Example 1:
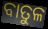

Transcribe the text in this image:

ବାତୁଳ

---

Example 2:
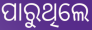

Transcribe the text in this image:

ପାରୁଥିଲେ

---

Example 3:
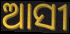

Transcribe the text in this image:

ଆସୀ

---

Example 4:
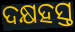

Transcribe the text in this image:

ଦକ୍ଷହସ୍ତ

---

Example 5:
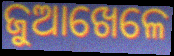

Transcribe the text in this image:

ଜୁଆଖେଳେ